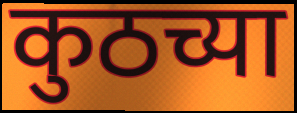
कुठच्या